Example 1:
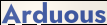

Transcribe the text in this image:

Arduous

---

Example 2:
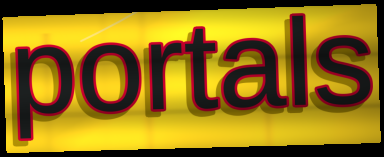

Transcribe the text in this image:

portals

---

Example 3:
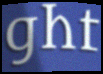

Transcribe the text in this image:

ght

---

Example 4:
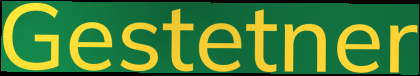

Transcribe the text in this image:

Gestetner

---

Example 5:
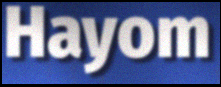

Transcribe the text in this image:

Hayom